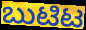
ಬುಟಿಟ